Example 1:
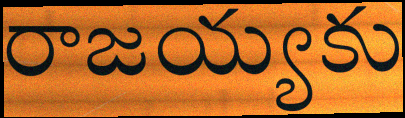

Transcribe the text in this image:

రాజయ్యకు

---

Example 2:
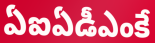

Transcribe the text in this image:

ఏఐఏడీఎంకే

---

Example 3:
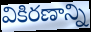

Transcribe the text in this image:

వికిరణాన్ని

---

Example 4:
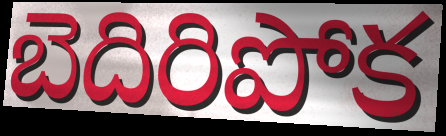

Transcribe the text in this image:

బెదిరిపోక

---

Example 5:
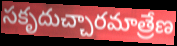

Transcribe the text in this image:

సకృదుచ్చారమాత్రేణ